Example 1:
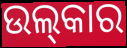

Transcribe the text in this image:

ଉଲ୍‍କାର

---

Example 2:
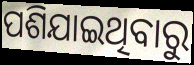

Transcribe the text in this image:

ପଶିଯାଇଥିବାରୁ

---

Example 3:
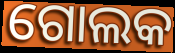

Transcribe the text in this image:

ଗୋଲକ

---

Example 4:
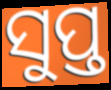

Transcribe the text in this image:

ସୁପ୍ତ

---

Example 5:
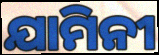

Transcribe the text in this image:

ଯାମିନୀ